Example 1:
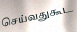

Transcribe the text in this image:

செய்வதுகூட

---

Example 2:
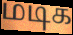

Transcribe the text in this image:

மடிக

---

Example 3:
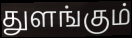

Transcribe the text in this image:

துளங்கும்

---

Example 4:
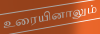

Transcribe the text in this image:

உரையினாலும்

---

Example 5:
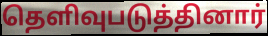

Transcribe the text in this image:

தெளிவுபடுத்தினார்